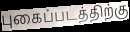
புகைப்படத்திற்கு